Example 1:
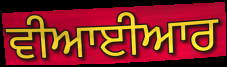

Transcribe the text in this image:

ਵੀਆਈਆਰ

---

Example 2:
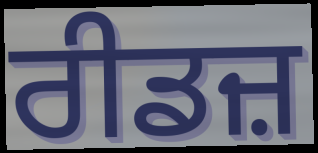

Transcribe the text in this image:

ਰੀਡਜ਼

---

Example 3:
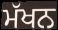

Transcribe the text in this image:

ਮੱਖਨ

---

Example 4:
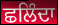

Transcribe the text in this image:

ਛਲਿੰਦਾ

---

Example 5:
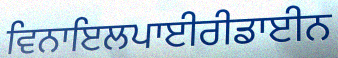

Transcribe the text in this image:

ਵਿਨਾਇਲਪਾਈਰੀਡਾਈਨ